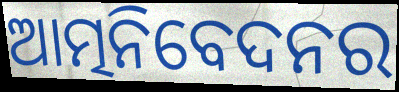
ଆତ୍ମନିବେଦନର